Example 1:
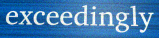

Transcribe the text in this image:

exceedingly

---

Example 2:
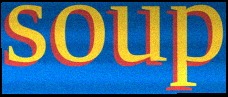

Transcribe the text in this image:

soup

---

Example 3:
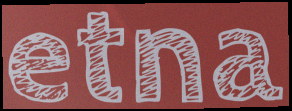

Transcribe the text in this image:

etna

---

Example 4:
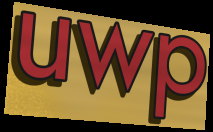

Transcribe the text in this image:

uwp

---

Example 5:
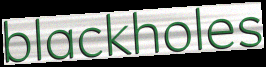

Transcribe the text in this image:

blackholes